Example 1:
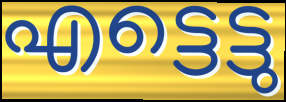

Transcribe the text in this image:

എട്ടെട്ടു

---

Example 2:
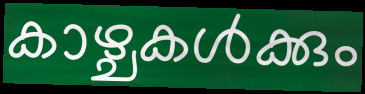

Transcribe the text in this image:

കാഴ്ചകൾക്കും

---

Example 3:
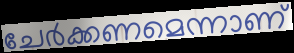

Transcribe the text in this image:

ചേർക്കണമെന്നാണ്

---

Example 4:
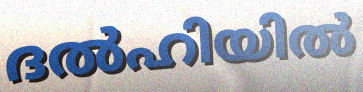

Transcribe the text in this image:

ദൽഹിയിൽ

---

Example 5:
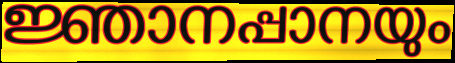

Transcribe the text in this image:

ജ്ഞാനപ്പാനയും